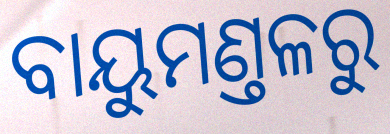
ବାୟୁମଣ୍ତଳରୁ